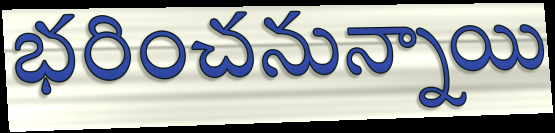
భరించనున్నాయి